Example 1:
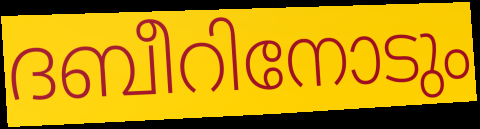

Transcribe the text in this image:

ദബീറിനോടും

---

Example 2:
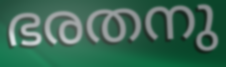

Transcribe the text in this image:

ഭരതനു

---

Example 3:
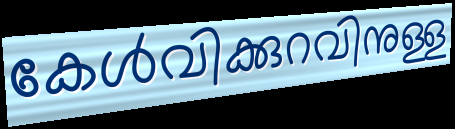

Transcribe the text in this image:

കേൾവിക്കുറവിനുള്ള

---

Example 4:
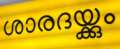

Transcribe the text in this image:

ശാരദയ്ക്കും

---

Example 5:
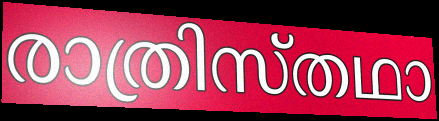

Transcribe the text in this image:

രാത്രിസ്തഥാ